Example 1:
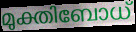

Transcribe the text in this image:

മുക്തിബോധ്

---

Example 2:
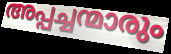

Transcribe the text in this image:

അപ്പച്ചന്മാരും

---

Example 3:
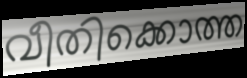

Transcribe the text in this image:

വീതിക്കൊത്ത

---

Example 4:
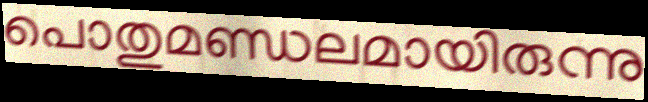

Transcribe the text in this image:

പൊതുമണ്ഡലമായിരുന്നു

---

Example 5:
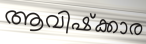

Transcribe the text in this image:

ആവിഷ്‌ക്കാര